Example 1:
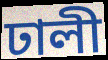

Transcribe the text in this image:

ঢালী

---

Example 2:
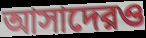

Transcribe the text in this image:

আসাদেরও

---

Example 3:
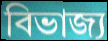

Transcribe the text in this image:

বিভাজ্য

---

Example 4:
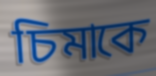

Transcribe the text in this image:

চিমাকে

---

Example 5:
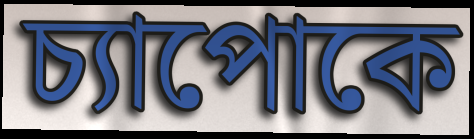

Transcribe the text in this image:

চ্যাপোকে